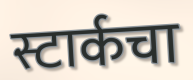
स्टार्कचा